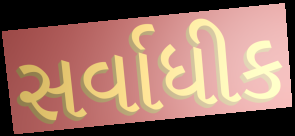
સર્વાધીક